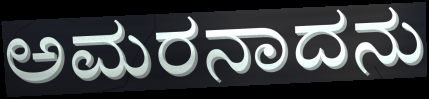
ಅಮರನಾದನು